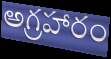
అగ్రహారం